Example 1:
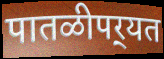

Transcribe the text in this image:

पातळीपर्यत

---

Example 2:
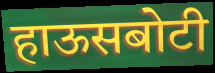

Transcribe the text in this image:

हाऊसबोटी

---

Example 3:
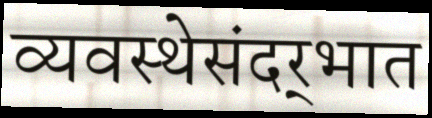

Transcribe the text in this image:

व्यवस्थेसंदर्भात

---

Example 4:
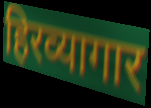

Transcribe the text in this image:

हिरव्यागार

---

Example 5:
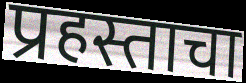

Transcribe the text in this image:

प्रहस्ताचा